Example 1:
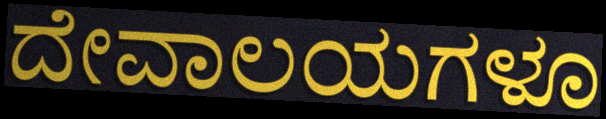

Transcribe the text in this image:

ದೇವಾಲಯಗಳೂ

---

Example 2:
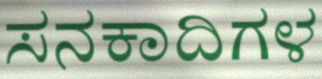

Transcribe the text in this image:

ಸನಕಾದಿಗಳ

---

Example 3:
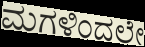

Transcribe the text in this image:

ಮಗಳಿಂದಲೇ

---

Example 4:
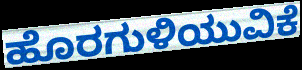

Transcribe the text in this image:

ಹೊರಗುಳಿಯುವಿಕೆ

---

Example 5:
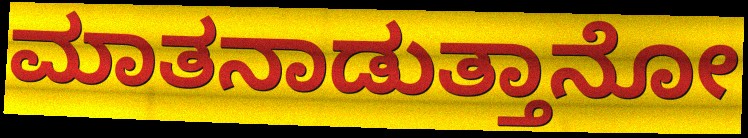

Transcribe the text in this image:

ಮಾತನಾಡುತ್ತಾನೋ